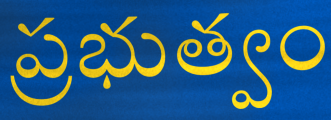
ప్రభుత్వం